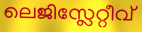
ലെജിസ്ലേറ്റീവ്